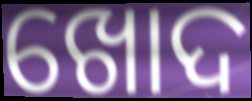
ଖୋଦ